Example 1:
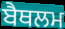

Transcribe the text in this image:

ਬੈਥਲਮ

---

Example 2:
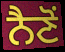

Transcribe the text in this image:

ਨੈਣੋਂ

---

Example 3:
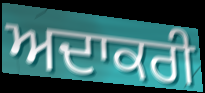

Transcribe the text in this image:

ਅਦਾਕਰੀ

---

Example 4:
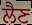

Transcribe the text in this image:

ਲੈਣ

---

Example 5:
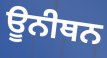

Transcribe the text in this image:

ਊਨੀਥਨ